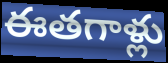
ఈతగాళ్లు